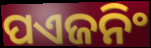
ପଏଜନିଂ